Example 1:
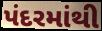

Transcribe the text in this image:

પંદરમાંથી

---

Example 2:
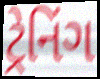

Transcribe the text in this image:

ટ્રેનિંગ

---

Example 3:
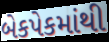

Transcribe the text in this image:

બેકપેકમાંથી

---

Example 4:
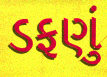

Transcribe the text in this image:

ડફણું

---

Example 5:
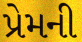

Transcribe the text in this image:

પ્રેમની